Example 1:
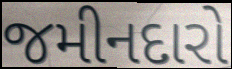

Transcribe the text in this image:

જમીનદારો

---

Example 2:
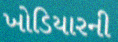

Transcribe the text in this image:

ખોડિયારની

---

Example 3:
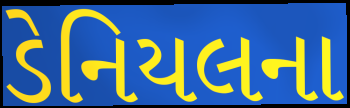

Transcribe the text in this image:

ડેનિયલના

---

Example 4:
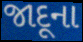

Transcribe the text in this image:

જાદૂના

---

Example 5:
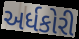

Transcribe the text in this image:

અર્ધકોરી